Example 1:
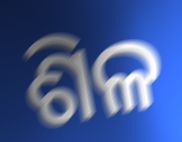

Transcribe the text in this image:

ଶିଳ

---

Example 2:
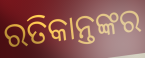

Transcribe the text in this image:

ରତିକାନ୍ତଙ୍କର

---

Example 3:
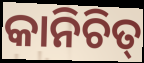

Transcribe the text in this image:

କାନିଚିତ୍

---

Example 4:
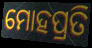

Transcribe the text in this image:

ମୋହପ୍ରତି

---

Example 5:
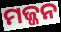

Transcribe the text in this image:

ମଜ୍ଜନ